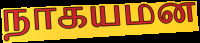
நாகயமன